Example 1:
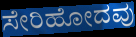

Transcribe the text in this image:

ಸೇರಿಹೋದವು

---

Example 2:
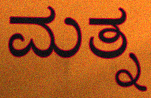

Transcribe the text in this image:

ಮತ್ನ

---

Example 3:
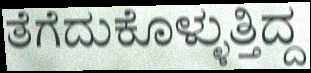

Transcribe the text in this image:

ತೆಗೆದುಕೊಳ್ಳುತ್ತಿದ್ದ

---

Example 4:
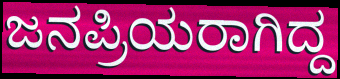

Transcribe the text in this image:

ಜನಪ್ರಿಯರಾಗಿದ್ದ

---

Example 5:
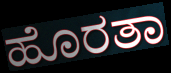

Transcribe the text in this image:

ಹೊರತಾ